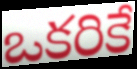
ఒకరికే